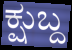
ಕ್ಷುಬ್ದ